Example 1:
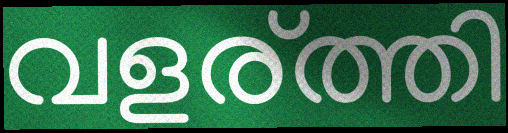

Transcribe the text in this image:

വളര്ത്തി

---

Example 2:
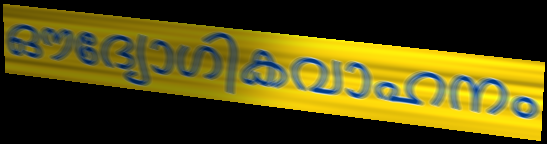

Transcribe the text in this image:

ഔദ്യോഗികവാഹനം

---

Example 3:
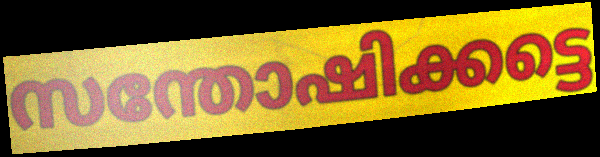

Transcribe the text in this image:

സന്തോഷിക്കട്ടെ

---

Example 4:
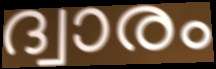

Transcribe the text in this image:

ദ്വാരം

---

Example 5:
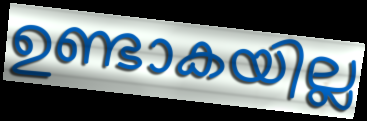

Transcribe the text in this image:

ഉണ്ടാകയില്ല